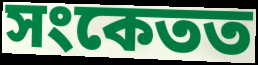
সংকেতত